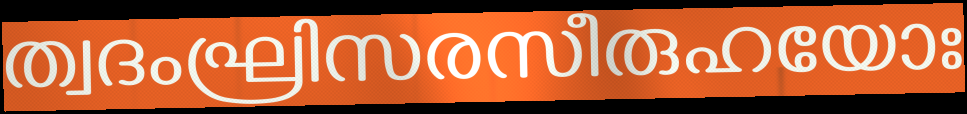
ത്വദംഘ്രിസരസീരുഹയോഃ